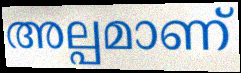
അല്പമാണ്